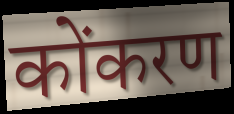
कोंकरण